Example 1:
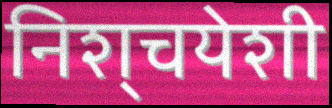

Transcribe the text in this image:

निश्चयेशी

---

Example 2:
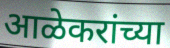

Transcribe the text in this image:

आळेकरांच्या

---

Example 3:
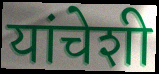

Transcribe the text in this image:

यांचेशी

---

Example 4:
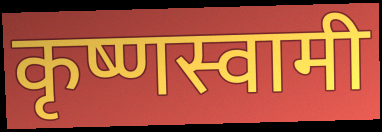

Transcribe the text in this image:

कृष्णस्वामी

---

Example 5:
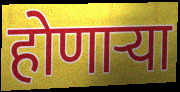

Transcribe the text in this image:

होणार्‍या